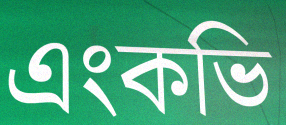
এংকভি